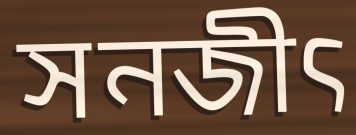
সনজীৎ